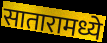
सातारामध्ये